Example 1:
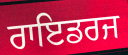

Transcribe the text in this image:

ਰਾਇਡਰਜ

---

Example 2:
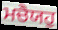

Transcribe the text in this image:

ਮਚੈਯਹੁ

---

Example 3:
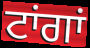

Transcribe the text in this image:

ਟਾਂਗਾਂ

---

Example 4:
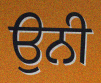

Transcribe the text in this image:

ਉਨੀ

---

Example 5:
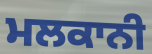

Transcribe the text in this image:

ਮਲਕਾਨੀ